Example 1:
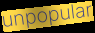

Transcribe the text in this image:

unpopular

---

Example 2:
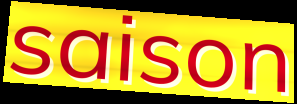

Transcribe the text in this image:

saison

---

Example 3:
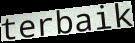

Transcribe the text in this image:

terbaik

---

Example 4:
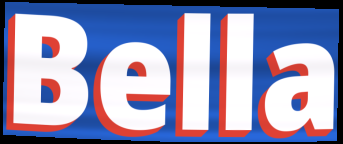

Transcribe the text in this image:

Bella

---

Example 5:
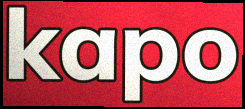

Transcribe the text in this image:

kapo